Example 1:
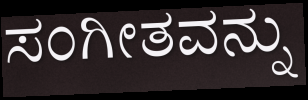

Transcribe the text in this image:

ಸಂಗೀತವನ್ನು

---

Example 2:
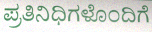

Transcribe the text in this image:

ಪ್ರತಿನಿಧಿಗಳೊಂದಿಗೆ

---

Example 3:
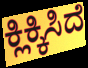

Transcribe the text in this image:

ಕ್ಲಿಕ್ಕಿಸಿದೆ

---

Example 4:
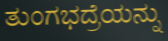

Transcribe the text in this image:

ತುಂಗಭದ್ರೆಯನ್ನು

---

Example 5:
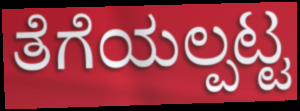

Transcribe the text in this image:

ತೆಗೆಯಲ್ಪಟ್ಟ